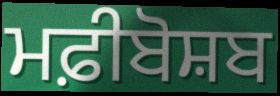
ਮਫ਼ੀਬੋਸ਼ਬ